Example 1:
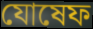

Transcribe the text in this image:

যোষেফ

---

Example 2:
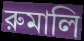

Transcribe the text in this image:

রুমালি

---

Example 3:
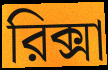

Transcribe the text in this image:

রিক্সা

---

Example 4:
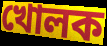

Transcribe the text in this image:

খোলক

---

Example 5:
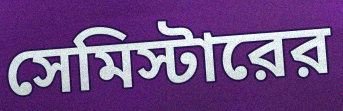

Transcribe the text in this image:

সেমিস্টারের